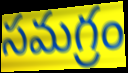
సమగ్రం